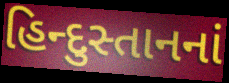
હિન્દુસ્તાનનાં